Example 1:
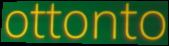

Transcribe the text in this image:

ottonto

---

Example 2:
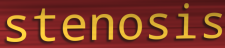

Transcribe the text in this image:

stenosis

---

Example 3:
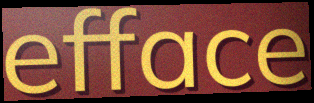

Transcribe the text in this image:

efface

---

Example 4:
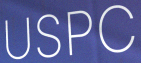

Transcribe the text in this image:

USPC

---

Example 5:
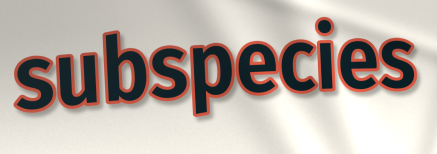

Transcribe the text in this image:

subspecies